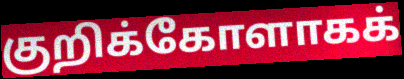
குறிக்கோளாகக்